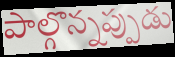
పాల్గొన్నప్పుడు